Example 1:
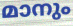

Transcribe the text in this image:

മാനും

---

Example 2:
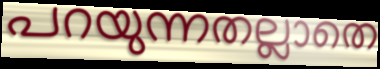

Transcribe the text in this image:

പറയുന്നതല്ലാതെ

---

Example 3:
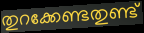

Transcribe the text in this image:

തുറക്കേണ്ടതുണ്ട്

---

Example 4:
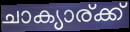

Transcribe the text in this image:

ചാക്യാര്ക്ക്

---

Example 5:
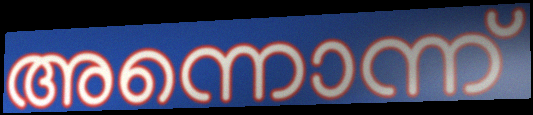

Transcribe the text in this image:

അന്നൊന്ന്